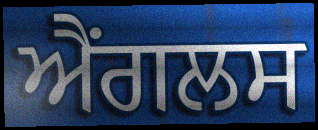
ਐਂਗਲਸ